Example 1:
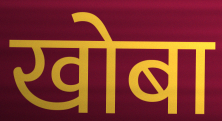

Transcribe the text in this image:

खोबा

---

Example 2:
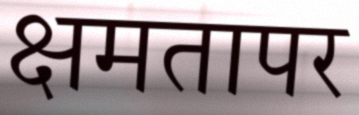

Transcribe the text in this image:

क्षमतापर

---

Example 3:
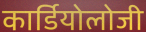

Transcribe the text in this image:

कार्डियोलोजी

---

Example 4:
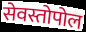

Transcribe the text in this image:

सेवस्तोपोल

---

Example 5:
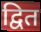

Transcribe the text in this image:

द्वित